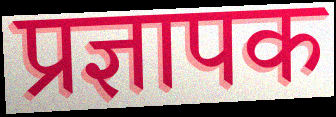
प्रज्ञापक